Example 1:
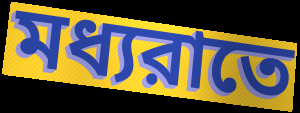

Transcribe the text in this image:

মধ্যরাতে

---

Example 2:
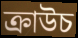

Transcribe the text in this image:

ক্রাউচ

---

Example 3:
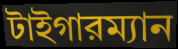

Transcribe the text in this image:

টাইগারম্যান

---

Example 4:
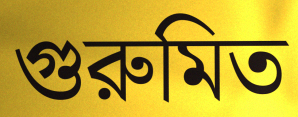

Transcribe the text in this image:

গুরুমিত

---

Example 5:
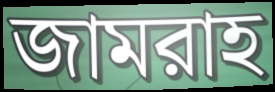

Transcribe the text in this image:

জামরাহ